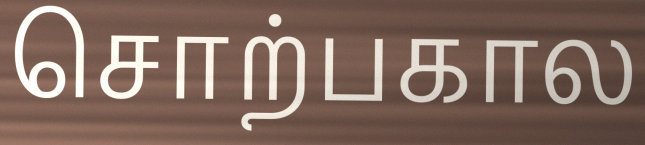
சொற்பகால